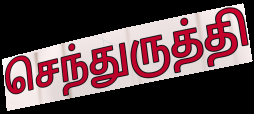
செந்துருத்தி